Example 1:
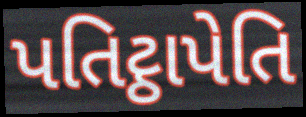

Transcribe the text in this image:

પતિટ્ઠાપેતિ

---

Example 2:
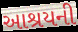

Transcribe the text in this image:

આશ્રયની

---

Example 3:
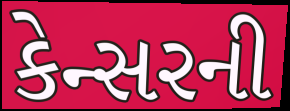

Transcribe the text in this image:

કેન્સરની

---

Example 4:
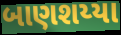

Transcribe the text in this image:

બાણશય્યા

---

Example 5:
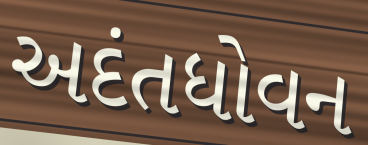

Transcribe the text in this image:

અદંતધોવન